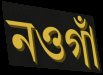
নওগাঁ